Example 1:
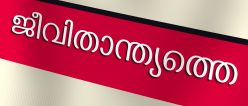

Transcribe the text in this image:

ജീവിതാന്ത്യത്തെ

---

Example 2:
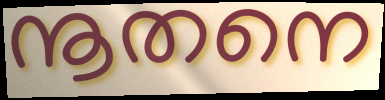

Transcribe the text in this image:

നൂതനെ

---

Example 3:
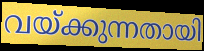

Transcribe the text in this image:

വയ്ക്കുന്നതായി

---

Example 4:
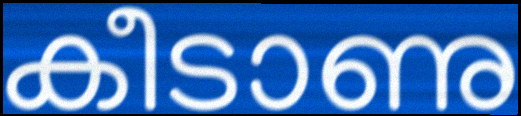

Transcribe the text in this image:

കീടാണു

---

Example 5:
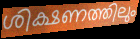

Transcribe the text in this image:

ശിക്ഷണത്തിലും